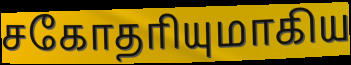
சகோதரியுமாகிய